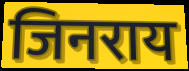
जिनराय